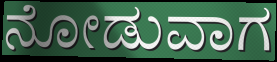
ನೋಡುವಾಗ